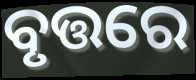
ବୃତ୍ତରେ